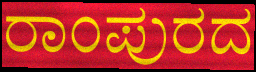
ರಾಂಪುರದ